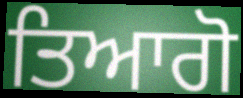
ਤਿਆਗੋ